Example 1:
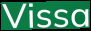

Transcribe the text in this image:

Vissa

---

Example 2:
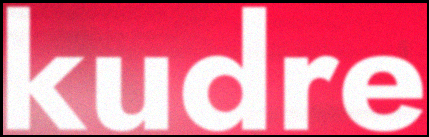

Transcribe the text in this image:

kudre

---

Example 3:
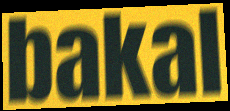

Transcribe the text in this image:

bakal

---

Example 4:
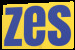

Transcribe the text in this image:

zes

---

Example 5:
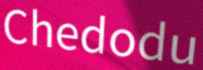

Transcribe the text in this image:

Chedodu